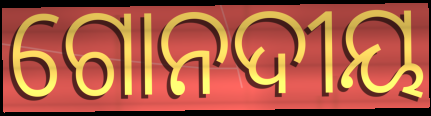
ଗୋନଦୀୟ